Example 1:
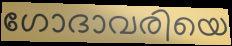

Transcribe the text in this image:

ഗോദാവരിയെ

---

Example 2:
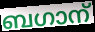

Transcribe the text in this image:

ബഗാന്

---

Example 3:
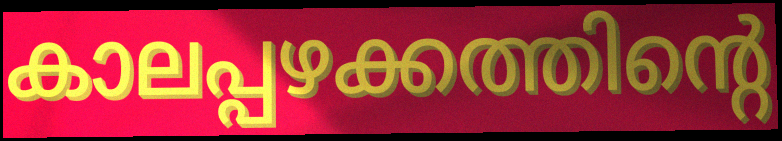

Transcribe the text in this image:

കാലപ്പഴക്കത്തിന്റെ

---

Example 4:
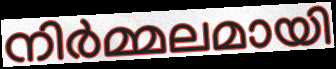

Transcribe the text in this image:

നിർമ്മലമായി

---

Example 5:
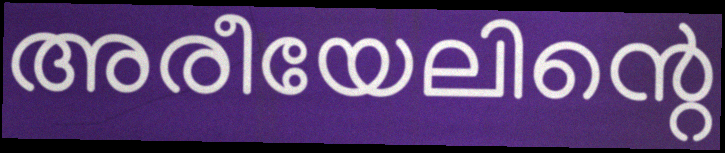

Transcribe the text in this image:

അരീയേലിന്റെ